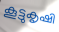
കൂട്ടുകൃഷി